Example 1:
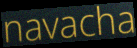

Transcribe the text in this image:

navacha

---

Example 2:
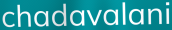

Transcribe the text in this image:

chadavalani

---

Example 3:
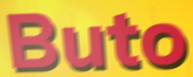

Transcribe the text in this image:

Buto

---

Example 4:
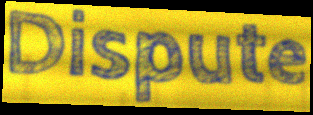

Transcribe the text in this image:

Dispute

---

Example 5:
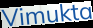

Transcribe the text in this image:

Vimukta